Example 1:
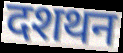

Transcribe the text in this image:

दशथन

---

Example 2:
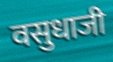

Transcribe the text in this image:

वसुधाजी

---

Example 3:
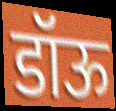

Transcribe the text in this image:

डॉऊ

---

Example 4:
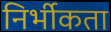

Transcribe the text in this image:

निर्भीकता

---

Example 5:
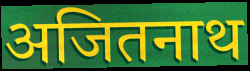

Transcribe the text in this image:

अजितनाथ